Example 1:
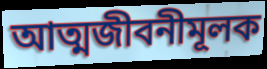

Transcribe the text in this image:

আত্মজীবনীমূলক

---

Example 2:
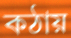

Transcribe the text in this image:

কঠায়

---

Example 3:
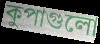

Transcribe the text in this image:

কুপাগুলো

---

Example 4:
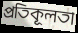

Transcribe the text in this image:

প্রতিকূলতা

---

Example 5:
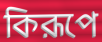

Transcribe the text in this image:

কিরূপে